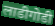
लाडीगोडी